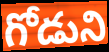
గోడుని